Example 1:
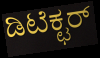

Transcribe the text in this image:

ಡಿಟೆಕ್ಟರ್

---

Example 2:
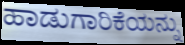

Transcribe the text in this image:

ಹಾಡುಗಾರಿಕೆಯನ್ನು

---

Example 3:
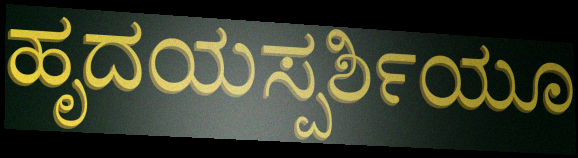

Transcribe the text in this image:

ಹೃದಯಸ್ಪರ್ಶಿಯೂ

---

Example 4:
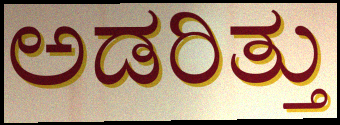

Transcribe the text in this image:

ಅಡರಿತ್ತು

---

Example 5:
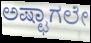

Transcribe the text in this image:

ಅಷ್ಟಾಗಲೇ